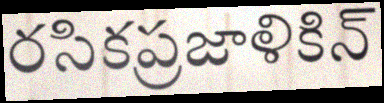
రసికప్రజాళికిన్